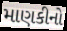
માણકીનો